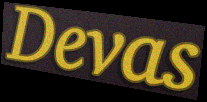
Devas